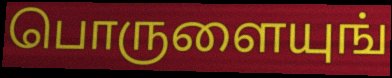
பொருளையுங்